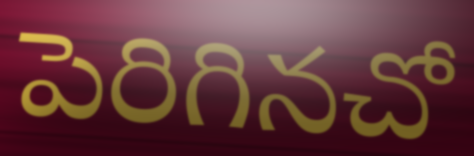
పెరిగినచో